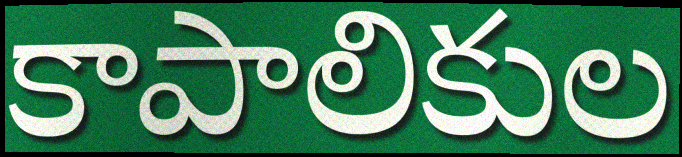
కాపాలికుల